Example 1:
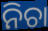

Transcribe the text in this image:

ନିଚା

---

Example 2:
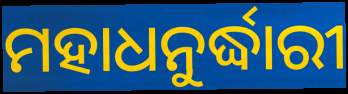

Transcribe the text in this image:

ମହାଧନୁର୍ଦ୍ଧାରୀ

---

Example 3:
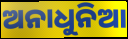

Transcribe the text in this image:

ଅନାଧୁନିଆ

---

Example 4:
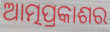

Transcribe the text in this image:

ଆତ୍ମପ୍ରକାଶର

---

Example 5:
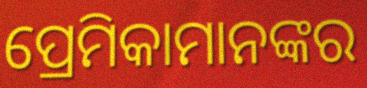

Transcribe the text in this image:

ପ୍ରେମିକାମାନଙ୍କର